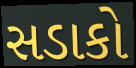
સડાકો